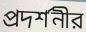
প্রদর্শনীর